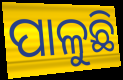
ପାଳୁଛି